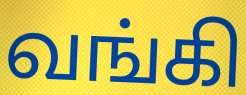
வங்கி